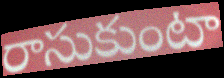
రాసుకుంటా